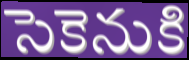
సెకెనుకి